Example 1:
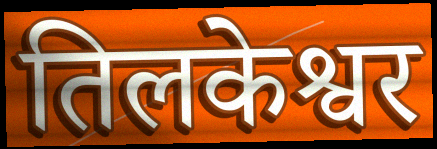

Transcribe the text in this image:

तिलकेश्वर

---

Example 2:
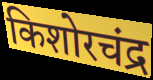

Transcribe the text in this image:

किशोरचंद्र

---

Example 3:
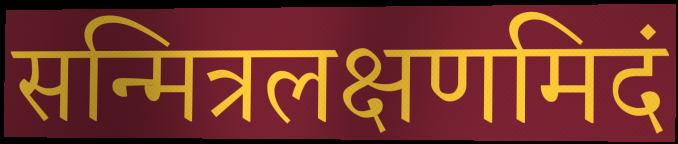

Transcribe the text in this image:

सन्मित्रलक्षणमिदं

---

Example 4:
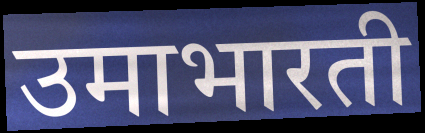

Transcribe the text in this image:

उमाभारती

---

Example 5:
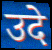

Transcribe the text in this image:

उदे